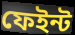
ফেইন্ট